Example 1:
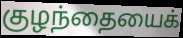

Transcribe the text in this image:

குழந்தையைக்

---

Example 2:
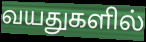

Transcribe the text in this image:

வயதுகளில்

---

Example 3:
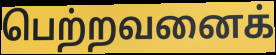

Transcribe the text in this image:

பெற்றவனைக்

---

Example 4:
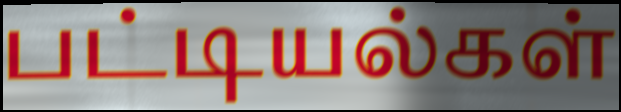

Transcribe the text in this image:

பட்டியல்கள்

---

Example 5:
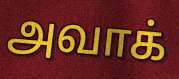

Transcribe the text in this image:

அவாக்